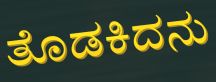
ತೊಡಕಿದನು